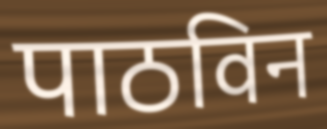
पाठविन